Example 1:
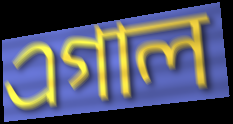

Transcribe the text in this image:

এগাল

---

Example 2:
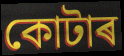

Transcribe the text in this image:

কোটাৰ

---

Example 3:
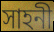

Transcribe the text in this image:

সাহনী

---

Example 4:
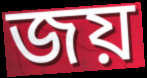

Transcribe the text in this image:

জয়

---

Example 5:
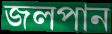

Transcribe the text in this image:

জলপান